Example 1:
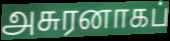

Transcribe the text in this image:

அசுரனாகப்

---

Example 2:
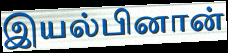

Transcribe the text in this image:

இயல்பினான்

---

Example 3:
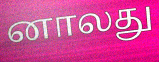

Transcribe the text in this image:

னாலது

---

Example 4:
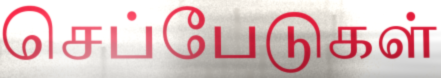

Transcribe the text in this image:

செப்பேடுகள்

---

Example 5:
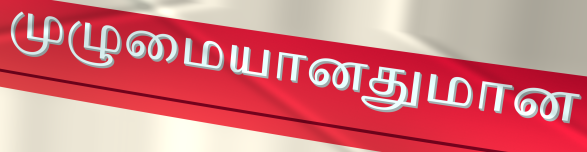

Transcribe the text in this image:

முழுமையானதுமான